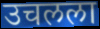
उचलला